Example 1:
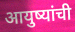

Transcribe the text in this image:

आयुष्यांची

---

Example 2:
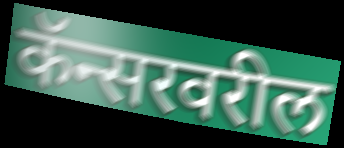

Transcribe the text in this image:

कॅन्सरवरील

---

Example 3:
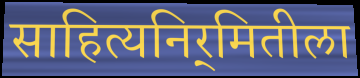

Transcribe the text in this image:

साहित्यनिर्मितीला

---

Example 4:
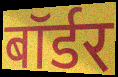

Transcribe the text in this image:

बॉर्डर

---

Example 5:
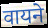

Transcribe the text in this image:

वायने